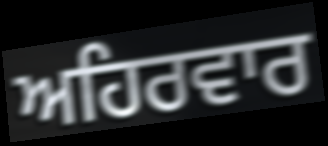
ਅਹਿਰਵਾਰ